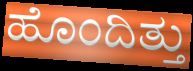
ಹೊಂದಿತ್ತು